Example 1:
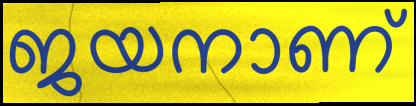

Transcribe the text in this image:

ജയനാണ്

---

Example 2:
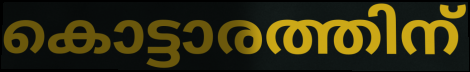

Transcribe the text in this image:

കൊട്ടാരത്തിന്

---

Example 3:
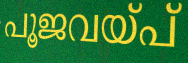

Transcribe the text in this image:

പൂജവയ്പ്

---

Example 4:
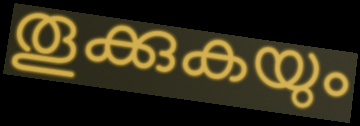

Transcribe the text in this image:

തൂക്കുകയും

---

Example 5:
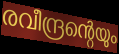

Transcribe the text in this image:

രവീന്ദ്രന്റെയും